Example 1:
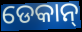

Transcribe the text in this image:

ଡେକାନ୍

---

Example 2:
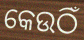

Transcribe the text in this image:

କେଉଠିଁ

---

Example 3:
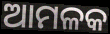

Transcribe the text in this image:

ଆମଳକ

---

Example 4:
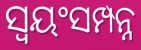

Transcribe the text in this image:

ସ୍ବୟଂସମ୍ପନ୍ନ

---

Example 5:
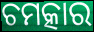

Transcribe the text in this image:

ଚମତ୍କାର